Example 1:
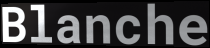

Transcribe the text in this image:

Blanche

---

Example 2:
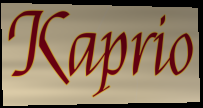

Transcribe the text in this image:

Kaprio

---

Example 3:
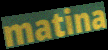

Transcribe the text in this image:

matina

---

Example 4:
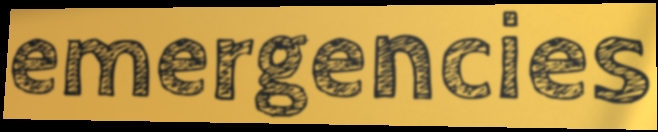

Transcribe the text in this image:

emergencies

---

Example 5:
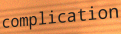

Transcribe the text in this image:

complication